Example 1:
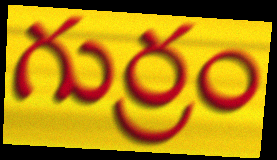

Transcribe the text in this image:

గుర్రం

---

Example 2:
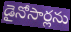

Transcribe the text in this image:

డైనోసార్లను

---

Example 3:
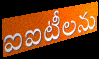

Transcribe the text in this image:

ఐఐటీలను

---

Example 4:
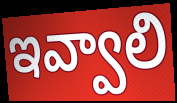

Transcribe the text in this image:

ఇవ్వాలి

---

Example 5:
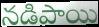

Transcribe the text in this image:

నడిపాయి